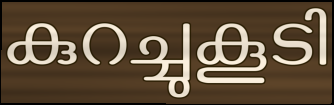
കുറച്ചുകൂടി